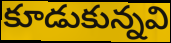
కూడుకున్నవి